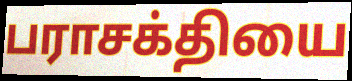
பராசக்தியை